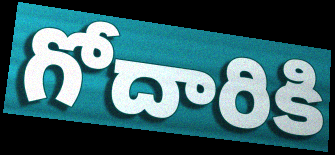
గోదారికి